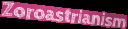
Zoroastrianism